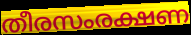
തീരസംരക്ഷണ